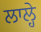
ਲਾਲ੍ਹੇ